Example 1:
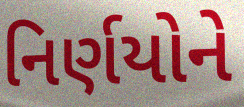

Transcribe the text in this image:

નિર્ણયોને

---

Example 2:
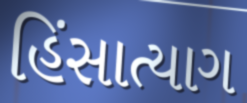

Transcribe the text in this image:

હિંસાત્યાગ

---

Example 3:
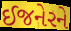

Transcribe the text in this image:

ઈજનેરને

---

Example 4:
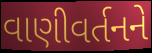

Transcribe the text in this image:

વાણીવર્તનને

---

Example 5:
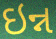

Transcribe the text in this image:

ઇન્ન